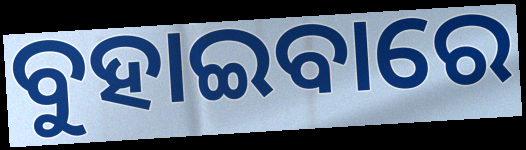
ବୁହାଇବାରେ